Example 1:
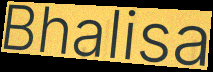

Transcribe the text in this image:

Bhalisa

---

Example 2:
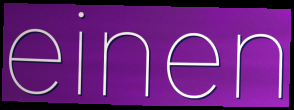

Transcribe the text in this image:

einen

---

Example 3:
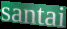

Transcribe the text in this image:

santai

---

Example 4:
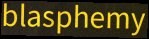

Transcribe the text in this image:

blasphemy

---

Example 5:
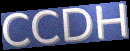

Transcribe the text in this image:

CCDH